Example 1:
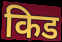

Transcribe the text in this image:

किड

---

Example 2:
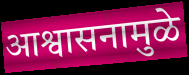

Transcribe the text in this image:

आश्वासनामुळे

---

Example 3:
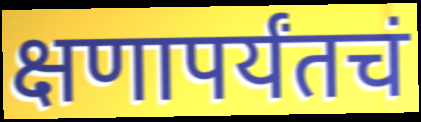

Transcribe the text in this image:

क्षणापर्यंतचं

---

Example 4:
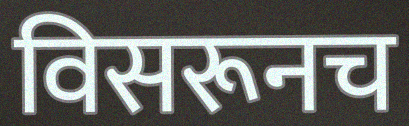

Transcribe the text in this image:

विसरूनच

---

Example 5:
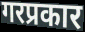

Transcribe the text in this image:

गरप्रकार